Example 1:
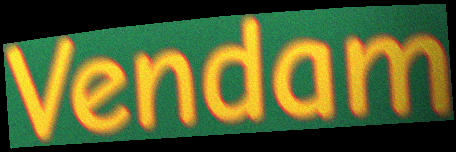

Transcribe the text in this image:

Vendam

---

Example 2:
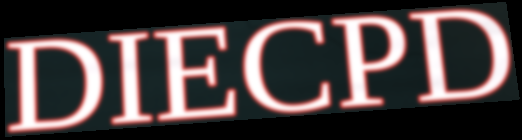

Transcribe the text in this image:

DIECPD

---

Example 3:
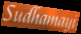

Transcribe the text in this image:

Sudhamayi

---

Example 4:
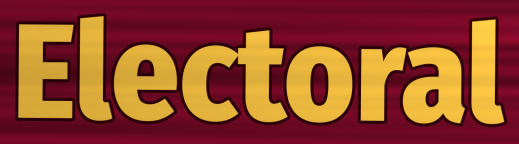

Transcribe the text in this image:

Electoral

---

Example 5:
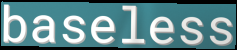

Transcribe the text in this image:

baseless